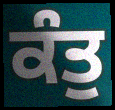
ਕੰਤੁ